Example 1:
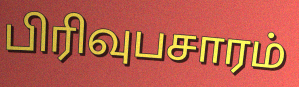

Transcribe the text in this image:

பிரிவுபசாரம்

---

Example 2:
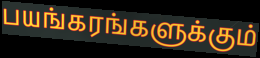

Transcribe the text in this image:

பயங்கரங்களுக்கும்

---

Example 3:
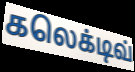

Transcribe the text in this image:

கலெக்டிவ்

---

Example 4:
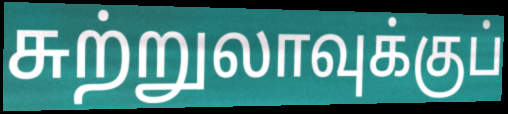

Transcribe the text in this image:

சுற்றுலாவுக்குப்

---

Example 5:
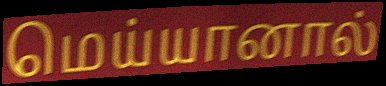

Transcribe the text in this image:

மெய்யானால்